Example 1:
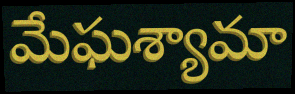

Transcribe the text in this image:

మేఘశ్యామా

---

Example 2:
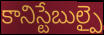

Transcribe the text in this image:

కానిస్టేబుల్పై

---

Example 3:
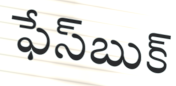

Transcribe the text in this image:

ఫేస్‌బుక్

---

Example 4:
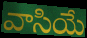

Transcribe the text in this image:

వాసియే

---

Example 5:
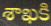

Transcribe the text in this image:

శాఖకి